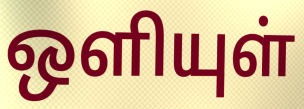
ஒளியுள்